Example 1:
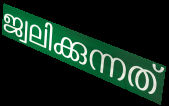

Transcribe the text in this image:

ജ്വലിക്കുന്നത്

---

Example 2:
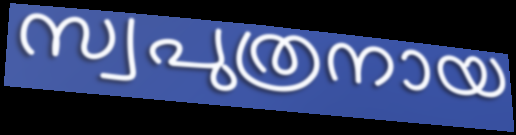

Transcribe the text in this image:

സ്വപുത്രനായ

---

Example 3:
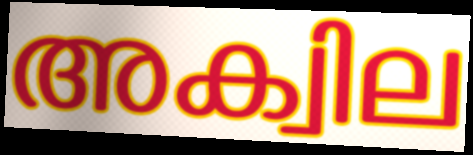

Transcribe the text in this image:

അക്വില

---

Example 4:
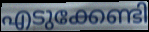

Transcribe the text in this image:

എടുക്കേണ്ടി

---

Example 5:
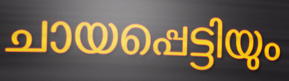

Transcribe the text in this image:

ചായപ്പെട്ടിയും